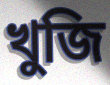
খুজি